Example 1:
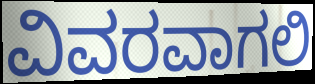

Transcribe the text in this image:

ವಿವರವಾಗಲಿ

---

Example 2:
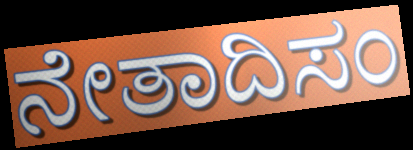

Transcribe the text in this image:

ನೇತಾದಿಸಂ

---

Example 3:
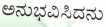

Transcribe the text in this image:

ಅನುಭವಿಸಿದನು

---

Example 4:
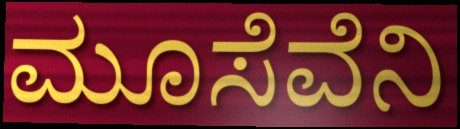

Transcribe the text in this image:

ಮೂಸೆವೆನಿ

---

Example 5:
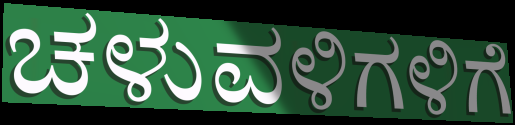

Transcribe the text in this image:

ಚಳುವಳಿಗಳಿಗೆ